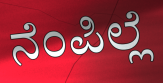
ನೆಂಪಿಲ್ಲೆ